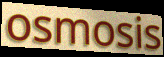
osmosis